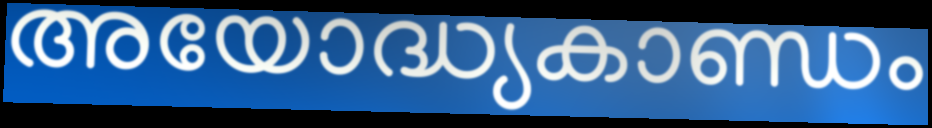
അയോദ്ധ്യകാണ്ഡം